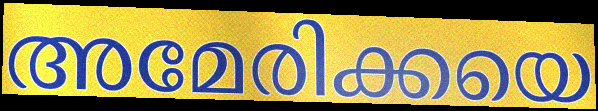
അമേരിക്കയെ